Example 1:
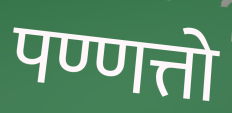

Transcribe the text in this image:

पण्णत्तो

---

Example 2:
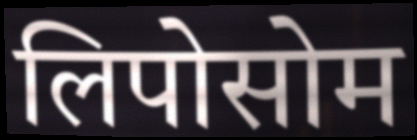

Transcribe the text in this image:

लिपोसोम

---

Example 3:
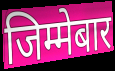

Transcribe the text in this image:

जिम्मेबार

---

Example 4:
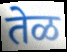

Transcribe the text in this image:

तेळ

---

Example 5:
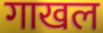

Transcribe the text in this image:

गाखल